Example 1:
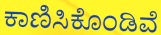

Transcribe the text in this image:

ಕಾಣಿಸಿಕೊಂಡಿವೆ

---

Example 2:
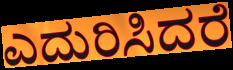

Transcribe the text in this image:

ಎದುರಿಸಿದರೆ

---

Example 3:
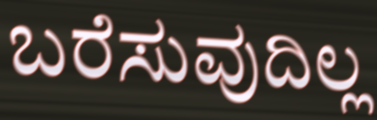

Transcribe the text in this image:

ಬರೆಸುವುದಿಲ್ಲ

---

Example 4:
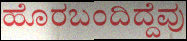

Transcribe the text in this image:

ಹೊರಬಂದಿದ್ದೆವು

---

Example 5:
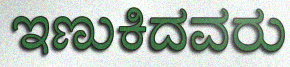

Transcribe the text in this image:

ಇಣುಕಿದವರು